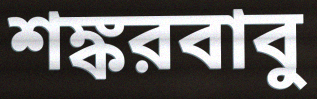
শঙ্করবাবু